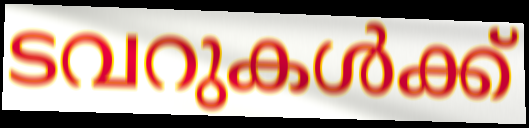
ടവറുകൾക്ക്